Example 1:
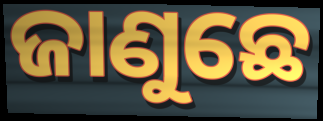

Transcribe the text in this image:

ଜାଣୁଛେ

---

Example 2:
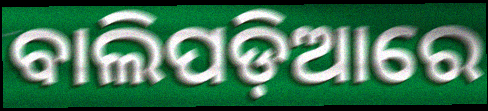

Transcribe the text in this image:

ବାଲିପଡ଼ିଆରେ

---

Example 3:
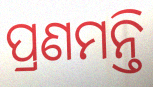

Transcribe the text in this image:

ପ୍ରଣମନ୍ତି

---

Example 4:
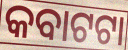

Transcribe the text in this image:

କବାଟଟା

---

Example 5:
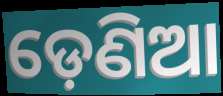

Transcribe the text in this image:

ଡ଼େଣିଆ